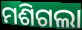
ମଶିଗଲା